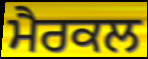
ਮੈਰਕਲ